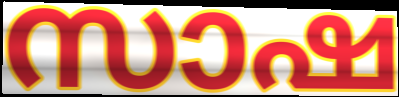
സാഷ